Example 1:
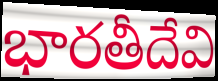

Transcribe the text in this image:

భారతీదేవి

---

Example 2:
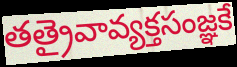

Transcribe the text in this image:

తత్రైవావ్యక్తసంజ్ఞకే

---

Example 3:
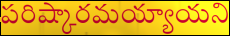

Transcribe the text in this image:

పరిష్కారమయ్యాయని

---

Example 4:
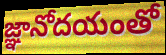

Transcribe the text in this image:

జ్ఞానోదయంతో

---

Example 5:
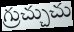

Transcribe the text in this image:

గ్రుచ్చుచు